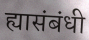
ह्यासंबंधी